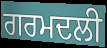
ਗਰਮਦਲੀ